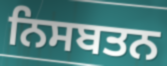
ਨਿਸਬਤਨ